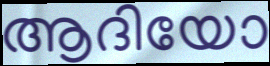
ആദിയോ